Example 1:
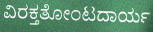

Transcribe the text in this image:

ವಿರಕ್ತತೋಂಟದಾರ್ಯ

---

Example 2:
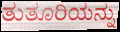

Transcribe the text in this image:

ತುತೂರಿಯನ್ನು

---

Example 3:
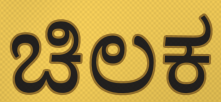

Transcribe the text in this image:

ಚಿಲಕ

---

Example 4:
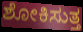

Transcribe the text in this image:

ಶೋಕಿಸುತ್ತ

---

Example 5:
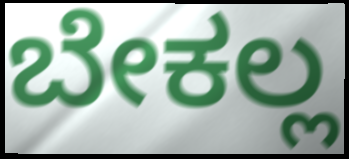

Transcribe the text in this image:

ಬೇಕಲ್ಲ